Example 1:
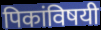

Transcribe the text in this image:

पिकांविषयी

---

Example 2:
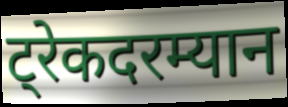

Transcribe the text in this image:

ट्रेकदरम्यान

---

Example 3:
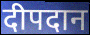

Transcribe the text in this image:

दीपदान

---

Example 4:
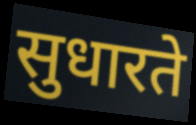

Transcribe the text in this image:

सुधारते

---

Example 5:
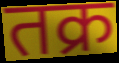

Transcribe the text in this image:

तक्र